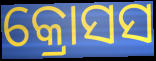
କ୍ରୋସସ